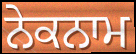
ਨੇਕਨਾਮ